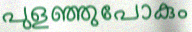
പുളഞ്ഞുപോകും